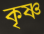
কৃষ্ণ